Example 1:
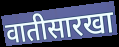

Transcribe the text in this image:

वातीसारखा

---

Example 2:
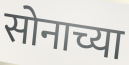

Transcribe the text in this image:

सोनाच्या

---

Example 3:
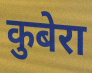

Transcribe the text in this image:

कुबेरा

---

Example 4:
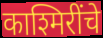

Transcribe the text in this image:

काश्मिरींचे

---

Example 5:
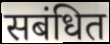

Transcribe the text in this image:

सबंधित